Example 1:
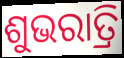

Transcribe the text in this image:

ଶୁଭରାତ୍ରି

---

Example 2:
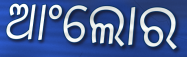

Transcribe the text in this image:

ଆଂଲୋର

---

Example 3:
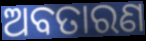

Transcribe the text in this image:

ଅବତାରଣ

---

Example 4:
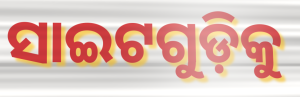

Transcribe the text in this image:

ସାଇଟଗୁଡ଼ିକୁ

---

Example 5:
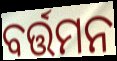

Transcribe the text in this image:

ବର୍ତ୍ତମନ